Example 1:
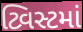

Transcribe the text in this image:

ટ્વિસ્ટમાં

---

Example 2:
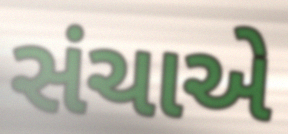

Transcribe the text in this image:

સંચાએ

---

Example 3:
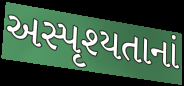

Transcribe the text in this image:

અસ્પૃશ્યતાનાં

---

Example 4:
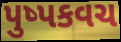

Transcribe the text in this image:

પુષ્પકવચ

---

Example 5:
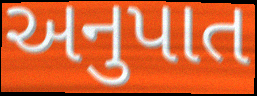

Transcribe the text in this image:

અનુપાત